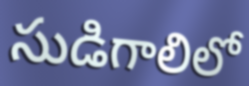
సుడిగాలిలో